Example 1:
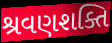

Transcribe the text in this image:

શ્રવણશક્તિ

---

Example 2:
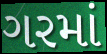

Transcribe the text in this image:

ગરમાં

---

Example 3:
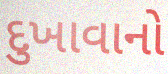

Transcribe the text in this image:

દુખાવાનો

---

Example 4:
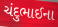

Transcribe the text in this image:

ચંદુભાઈના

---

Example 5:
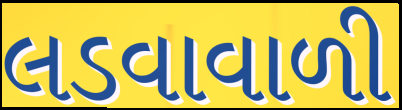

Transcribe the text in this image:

લડવાવાળી